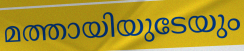
മത്തായിയുടേയും